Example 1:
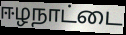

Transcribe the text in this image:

ஈழநாட்டை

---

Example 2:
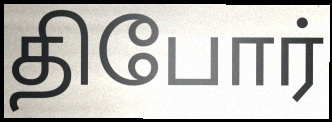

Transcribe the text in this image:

திபோர்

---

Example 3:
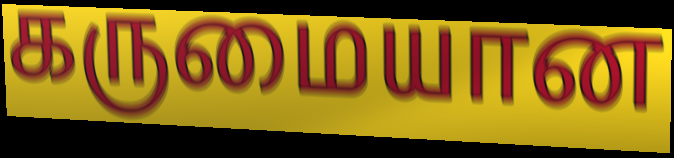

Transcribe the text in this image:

கருமையான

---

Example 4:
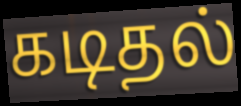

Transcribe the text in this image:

கடிதல்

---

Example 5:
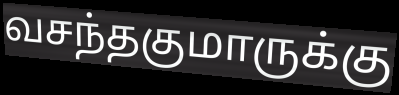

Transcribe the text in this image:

வசந்தகுமாருக்கு